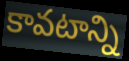
కావటాన్ని